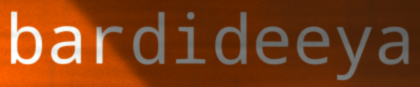
bardideeya